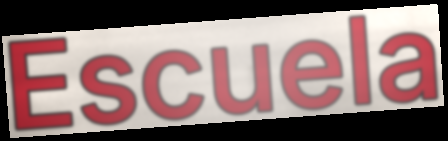
Escuela